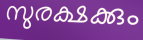
സുരക്ഷക്കും